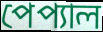
পেপ্যাল